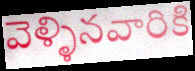
వెళ్ళినవారికి